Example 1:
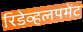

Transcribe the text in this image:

रिडेव्हलपमेंट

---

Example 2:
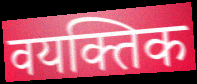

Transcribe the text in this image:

वयक्तिक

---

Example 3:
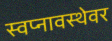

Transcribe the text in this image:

स्वप्नावस्थेवर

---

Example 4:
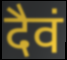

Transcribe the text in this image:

दैवं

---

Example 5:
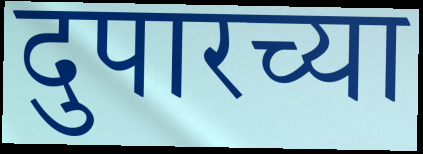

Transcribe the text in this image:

दुपारच्या